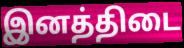
இனத்திடை